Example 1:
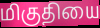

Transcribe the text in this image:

மிகுதியை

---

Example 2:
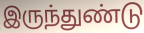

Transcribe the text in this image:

இருந்துண்டு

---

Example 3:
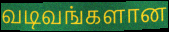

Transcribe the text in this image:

வடிவங்களான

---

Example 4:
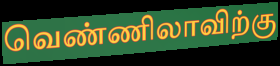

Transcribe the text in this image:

வெண்ணிலாவிற்கு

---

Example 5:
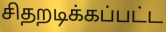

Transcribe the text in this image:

சிதறடிக்கப்பட்ட